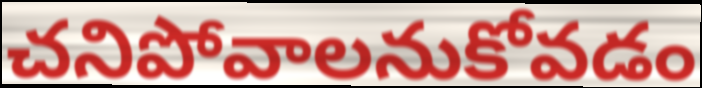
చనిపోవాలనుకోవడం